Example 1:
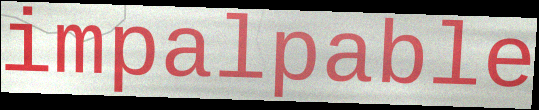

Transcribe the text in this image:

impalpable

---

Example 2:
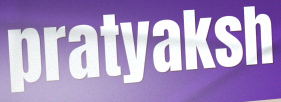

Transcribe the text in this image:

pratyaksh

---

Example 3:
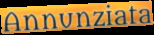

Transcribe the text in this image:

Annunziata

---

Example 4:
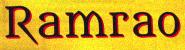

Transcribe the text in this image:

Ramrao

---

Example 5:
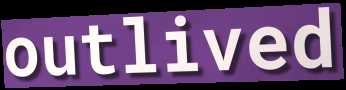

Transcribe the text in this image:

outlived